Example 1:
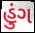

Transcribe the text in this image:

હુંગ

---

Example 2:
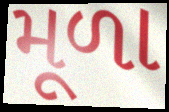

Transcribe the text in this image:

મૂળા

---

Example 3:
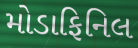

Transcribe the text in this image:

મોડાફિનિલ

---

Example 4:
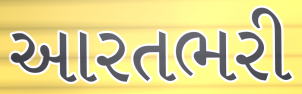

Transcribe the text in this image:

આરતભરી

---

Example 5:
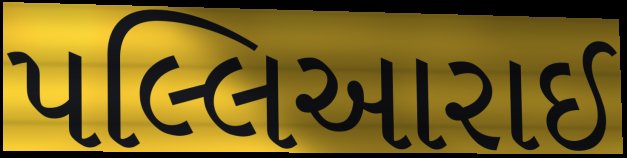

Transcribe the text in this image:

પલ્લિઆરાઈ